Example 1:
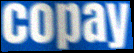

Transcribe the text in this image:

copay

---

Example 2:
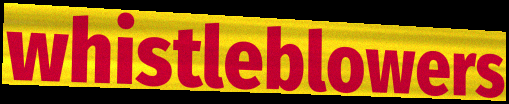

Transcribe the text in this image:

whistleblowers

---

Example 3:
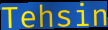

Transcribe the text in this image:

Tehsin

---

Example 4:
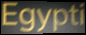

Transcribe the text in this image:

Egypti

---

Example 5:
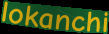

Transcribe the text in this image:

lokanchi